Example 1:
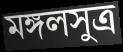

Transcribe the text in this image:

মঙ্গলসুত্র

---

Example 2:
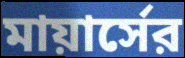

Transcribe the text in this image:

মায়ার্সের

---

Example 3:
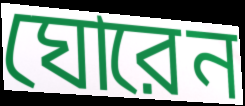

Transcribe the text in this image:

ঘোরেন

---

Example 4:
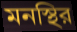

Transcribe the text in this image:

মনস্থির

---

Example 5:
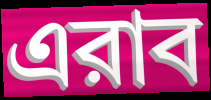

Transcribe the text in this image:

এরাব